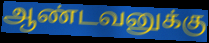
ஆண்டவனுக்கு